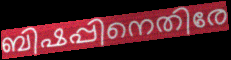
ബിഷപ്പിനെതിരേ